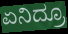
ಏನಿದ್ರೂ